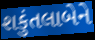
શકુંતલાબેને